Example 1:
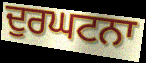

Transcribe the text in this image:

ਦੁਰਘਟਨਾ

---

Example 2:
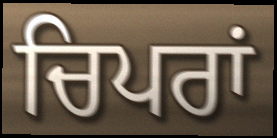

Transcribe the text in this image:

ਚਿਪਰਾਂ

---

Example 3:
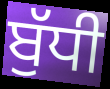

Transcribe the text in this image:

ਬੁੱਧੀ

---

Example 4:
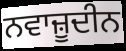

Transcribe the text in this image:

ਨਵਾਜ਼ੂਦੀਨ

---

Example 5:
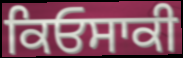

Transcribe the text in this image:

ਕਿਓਸਾਕੀ